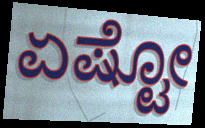
ಏಷ್ಟೋ